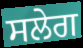
ਸਲੇਗ